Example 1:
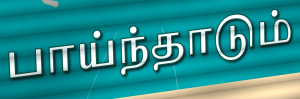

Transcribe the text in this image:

பாய்ந்தாடும்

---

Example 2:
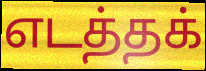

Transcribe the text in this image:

எடத்தக்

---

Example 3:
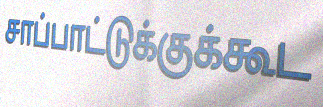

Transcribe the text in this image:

சாப்பாட்டுக்குக்கூட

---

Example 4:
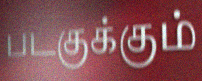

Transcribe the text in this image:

படகுக்கும்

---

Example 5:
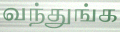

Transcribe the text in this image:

வந்துங்க